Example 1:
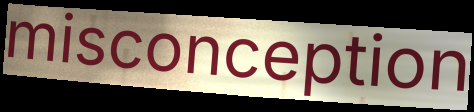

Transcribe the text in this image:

misconception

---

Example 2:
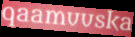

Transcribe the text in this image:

qaamuuska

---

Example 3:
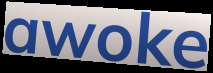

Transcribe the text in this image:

awoke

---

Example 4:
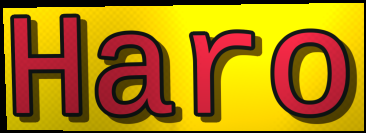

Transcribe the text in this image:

Haro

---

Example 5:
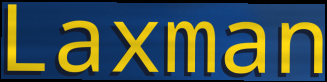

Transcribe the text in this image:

Laxman